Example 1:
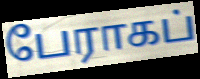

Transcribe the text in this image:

பேராகப்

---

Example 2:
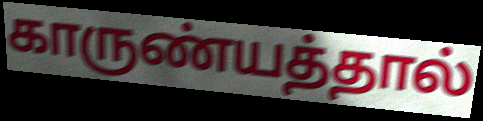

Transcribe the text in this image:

காருண்யத்தால்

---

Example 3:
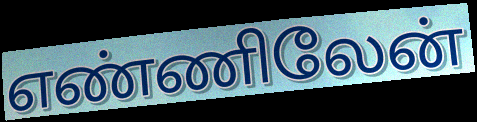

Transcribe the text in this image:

எண்ணிலேன்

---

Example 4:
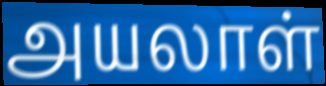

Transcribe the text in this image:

அயலாள்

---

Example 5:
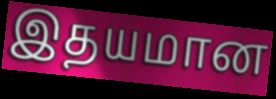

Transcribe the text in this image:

இதயமான